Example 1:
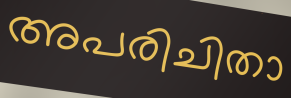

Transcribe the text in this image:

അപരിചിതാ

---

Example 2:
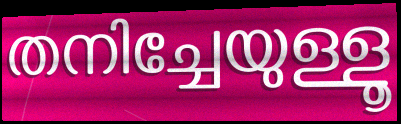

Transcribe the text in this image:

തനിച്ചേയുള്ളൂ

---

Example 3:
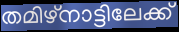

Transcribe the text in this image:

തമിഴ്നാട്ടിലേക്ക്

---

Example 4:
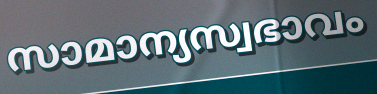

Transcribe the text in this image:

സാമാന്യസ്വഭാവം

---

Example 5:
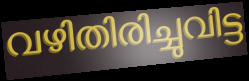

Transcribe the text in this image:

വഴിതിരിച്ചുവിട്ട